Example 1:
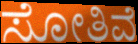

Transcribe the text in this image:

ಸೋತಿವೆ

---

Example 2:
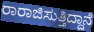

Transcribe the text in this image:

ರಾರಾಜಿಸುತ್ತಿದ್ದಾನೆ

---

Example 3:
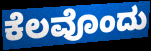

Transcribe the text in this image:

ಕೆಲವೊಂದು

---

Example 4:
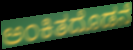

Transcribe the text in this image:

ಅಂಕಿತದೊಡನೆ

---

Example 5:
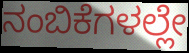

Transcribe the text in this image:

ನಂಬಿಕೆಗಳಲ್ಲೇ